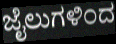
ಜೈಲುಗಳಿಂದ